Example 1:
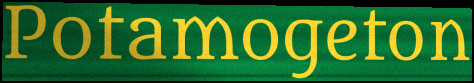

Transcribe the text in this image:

Potamogeton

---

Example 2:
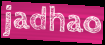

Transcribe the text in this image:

jadhao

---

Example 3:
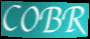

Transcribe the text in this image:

COBR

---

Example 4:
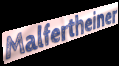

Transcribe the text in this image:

Malfertheiner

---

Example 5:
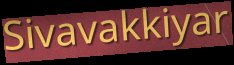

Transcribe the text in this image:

Sivavakkiyar